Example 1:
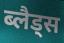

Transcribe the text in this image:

ब्लैड्स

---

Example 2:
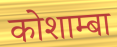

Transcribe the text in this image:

कोशाम्बा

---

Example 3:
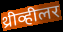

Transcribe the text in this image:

थ्रीव्हीलर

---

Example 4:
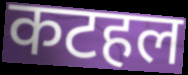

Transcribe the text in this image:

कटहल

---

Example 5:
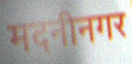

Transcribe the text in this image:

मदनीनगर